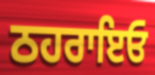
ਠਹਰਾਇਓ